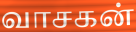
வாசகன்